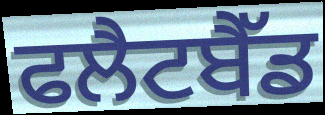
ਫਲੈਟਬੈੱਡ